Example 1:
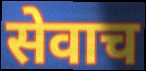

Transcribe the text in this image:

सेवाच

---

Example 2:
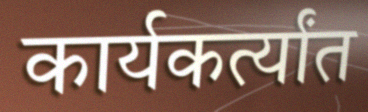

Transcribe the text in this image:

कार्यकर्त्यांत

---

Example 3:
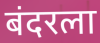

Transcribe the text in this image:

बंदरला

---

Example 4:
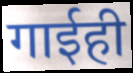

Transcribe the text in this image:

गाईही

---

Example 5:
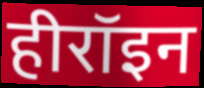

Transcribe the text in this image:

हीरॉइन